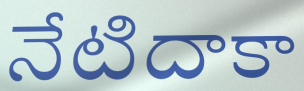
నేటిదాకా